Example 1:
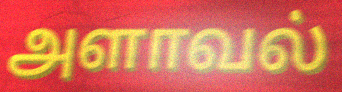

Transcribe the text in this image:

அளாவல்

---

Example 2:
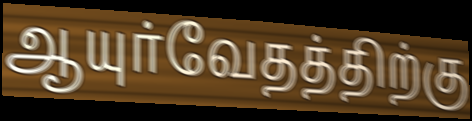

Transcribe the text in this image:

ஆயுர்வேதத்திற்கு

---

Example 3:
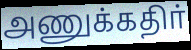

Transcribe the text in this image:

அணுக்கதிர்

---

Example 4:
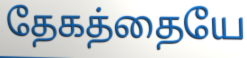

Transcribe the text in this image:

தேகத்தையே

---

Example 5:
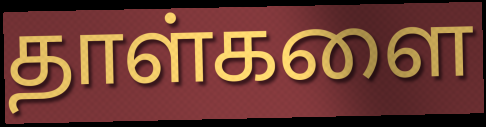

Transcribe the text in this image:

தாள்களை